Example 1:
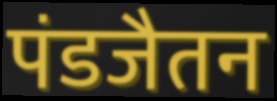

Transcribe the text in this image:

पंडजैतन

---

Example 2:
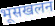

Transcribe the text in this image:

भूसखलन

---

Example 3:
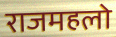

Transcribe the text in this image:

राजमहलो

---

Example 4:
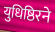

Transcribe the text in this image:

युधिष्ठिरने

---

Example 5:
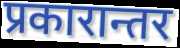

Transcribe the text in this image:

प्रकारान्तर